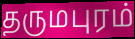
தருமபுரம்